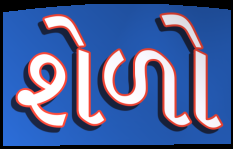
શેળો